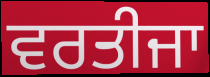
ਵਰਤੀਜਾ